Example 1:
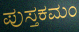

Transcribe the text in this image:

ಪುಸ್ತಕಮಂ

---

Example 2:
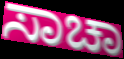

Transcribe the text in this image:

ಸಾಚಾ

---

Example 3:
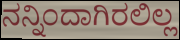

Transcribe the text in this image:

ನನ್ನಿಂದಾಗಿರಲಿಲ್ಲ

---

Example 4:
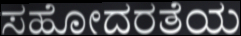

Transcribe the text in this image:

ಸಹೋದರತೆಯ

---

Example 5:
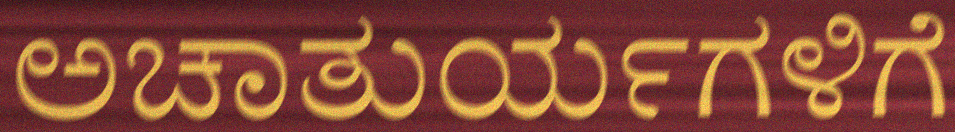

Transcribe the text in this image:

ಅಚಾತುರ್ಯಗಳಿಗೆ